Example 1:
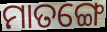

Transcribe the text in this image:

ମାତଙ୍ଗେ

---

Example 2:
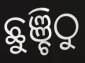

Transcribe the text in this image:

ଛୁଞ୍ଚିଠୁ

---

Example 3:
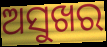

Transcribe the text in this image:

ଅସୁଖର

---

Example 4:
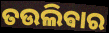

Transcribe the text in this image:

ତଉଲିଵାର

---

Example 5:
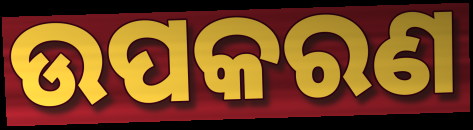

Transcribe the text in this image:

ଉପକରଣ